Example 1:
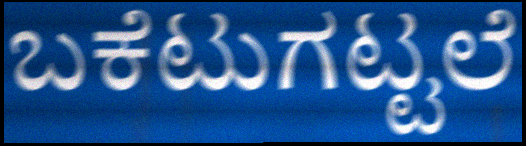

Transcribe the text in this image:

ಬಕೆಟುಗಟ್ಟಲೆ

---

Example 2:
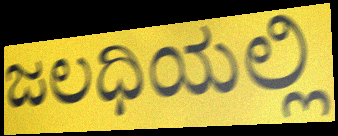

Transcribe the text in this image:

ಜಲಧಿಯಲ್ಲಿ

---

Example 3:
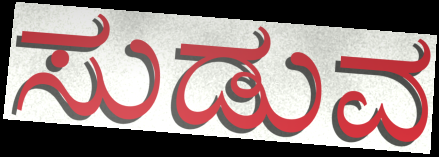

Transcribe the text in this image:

ಸುಡುವ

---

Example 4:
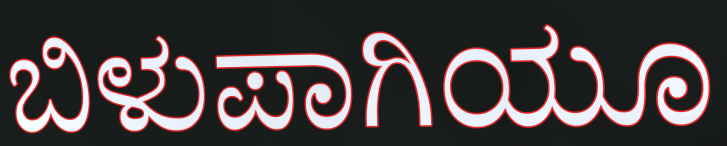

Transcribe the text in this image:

ಬಿಳುಪಾಗಿಯೂ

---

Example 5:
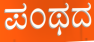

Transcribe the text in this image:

ಪಂಥದ